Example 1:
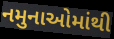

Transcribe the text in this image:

નમુનાઓમાંથી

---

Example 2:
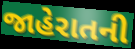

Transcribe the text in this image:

જાહેરાતની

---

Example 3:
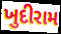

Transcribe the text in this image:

ખુદીરામ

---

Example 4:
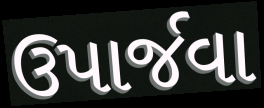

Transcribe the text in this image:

ઉપાર્જવા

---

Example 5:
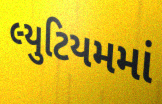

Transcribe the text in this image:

લ્યુટિયમમાં